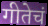
गीतेचं